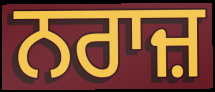
ਨਰਾਜ਼